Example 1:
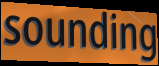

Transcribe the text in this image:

sounding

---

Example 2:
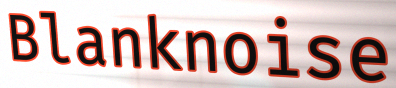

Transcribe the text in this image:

Blanknoise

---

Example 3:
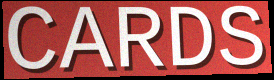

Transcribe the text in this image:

CARDS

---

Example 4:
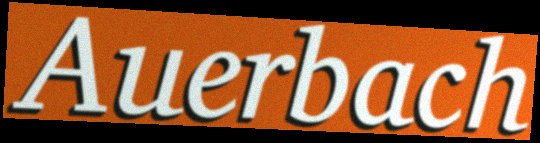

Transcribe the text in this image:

Auerbach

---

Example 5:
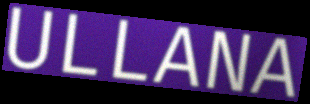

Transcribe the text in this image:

ULLANA